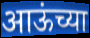
आऊंच्या